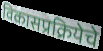
विकासप्रक्रियेचे